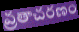
వ్రతాచరణం